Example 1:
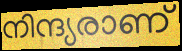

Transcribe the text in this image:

നിന്ദ്യരാണ്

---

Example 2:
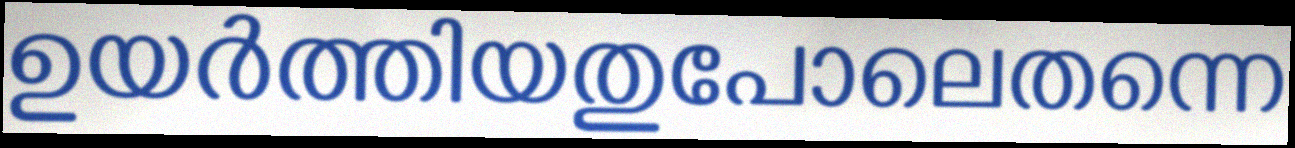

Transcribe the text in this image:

ഉയർത്തിയതുപോലെതന്നെ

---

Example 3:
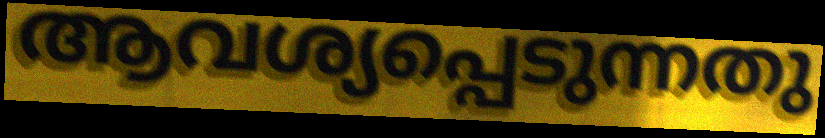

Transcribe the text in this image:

ആവശ്യപ്പെടുന്നതു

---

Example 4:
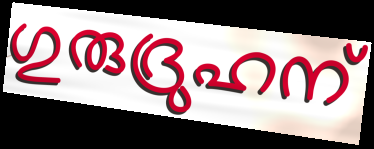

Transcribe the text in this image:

ഗുരുദ്രുഹന്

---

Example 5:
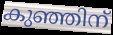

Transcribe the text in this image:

കുഞ്ഞിന്